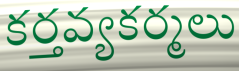
కర్తవ్యకర్మలు